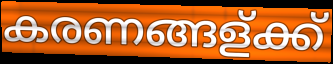
കരണങ്ങള്ക്ക്